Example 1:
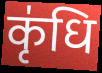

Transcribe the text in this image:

कृ॑धि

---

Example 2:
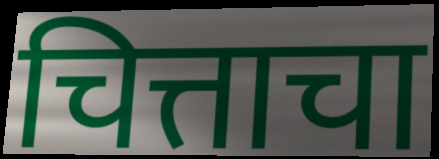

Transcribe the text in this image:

चित्ताचा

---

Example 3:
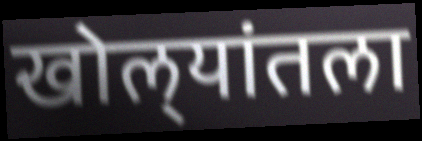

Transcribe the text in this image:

खोल्यांतला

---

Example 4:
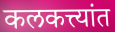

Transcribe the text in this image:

कलकत्त्यांत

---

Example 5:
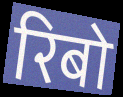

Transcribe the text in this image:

रिबो